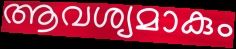
ആവശ്യമാകും